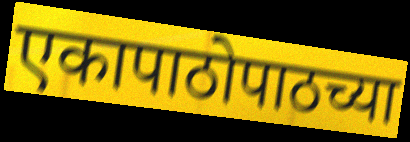
एकापाठोपाठच्या